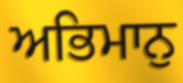
ਅਭਿਮਾਨੁ